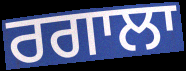
ਰਗਾਲਾ